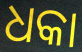
ଧକା